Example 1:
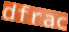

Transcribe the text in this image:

dfrac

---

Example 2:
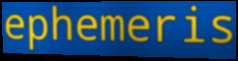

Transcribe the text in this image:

ephemeris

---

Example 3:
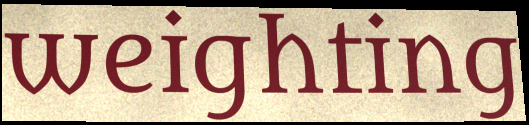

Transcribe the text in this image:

weighting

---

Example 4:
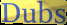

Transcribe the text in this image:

Dubs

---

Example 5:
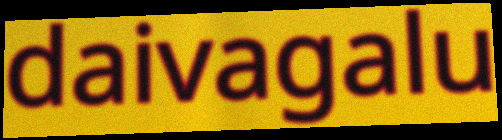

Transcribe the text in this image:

daivagalu